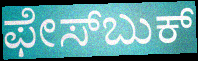
ಫೇಸ್‌ಬುಕ್